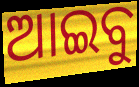
ଆଇବୁ